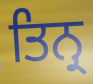
ਤਿਨ੍ਰ